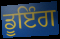
ਡੂਇੰਗ